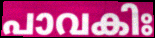
പാവകിഃ